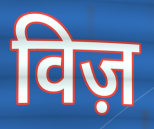
विज़